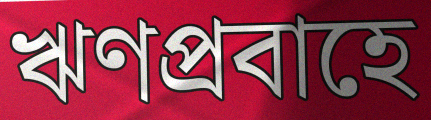
ঋণপ্রবাহে